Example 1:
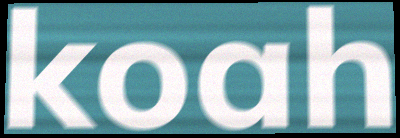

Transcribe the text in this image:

koah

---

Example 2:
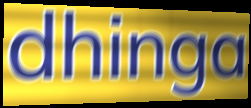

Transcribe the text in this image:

dhinga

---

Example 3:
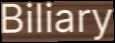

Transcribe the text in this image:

Biliary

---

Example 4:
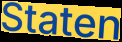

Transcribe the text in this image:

Staten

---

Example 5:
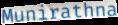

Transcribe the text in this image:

Munirathna